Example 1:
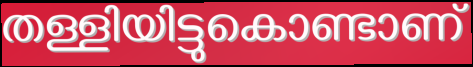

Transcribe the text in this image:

തള്ളിയിട്ടുകൊണ്ടാണ്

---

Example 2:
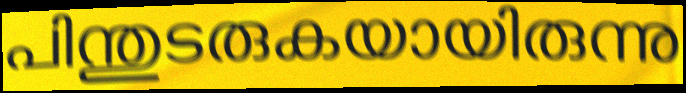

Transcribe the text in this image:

പിന്തുടരുകയായിരുന്നു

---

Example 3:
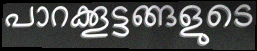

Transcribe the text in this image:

പാറക്കൂട്ടങ്ങളുടെ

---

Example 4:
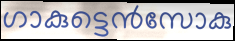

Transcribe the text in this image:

ഗാകുട്ടെൻസോകു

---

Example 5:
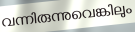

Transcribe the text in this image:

വന്നിരുന്നുവെങ്കിലും